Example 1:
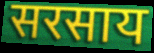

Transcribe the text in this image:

सरसाय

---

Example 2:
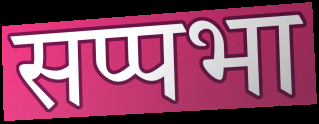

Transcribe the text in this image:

सप्पभा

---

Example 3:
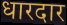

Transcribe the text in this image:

धारदार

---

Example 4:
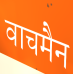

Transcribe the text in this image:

वाचमैन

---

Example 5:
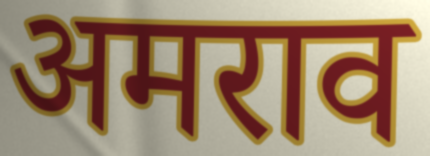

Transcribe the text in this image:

अमराव